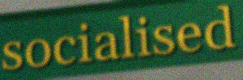
socialised